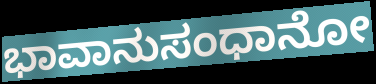
ಭಾವಾನುಸಂಧಾನೋ